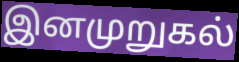
இனமுறுகல்